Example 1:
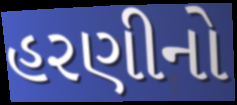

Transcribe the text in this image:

હરણીનો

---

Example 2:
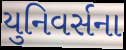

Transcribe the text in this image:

યુનિવર્સના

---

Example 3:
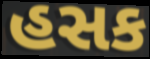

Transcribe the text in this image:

હસક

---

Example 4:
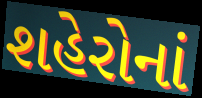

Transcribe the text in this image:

શહેરોનાં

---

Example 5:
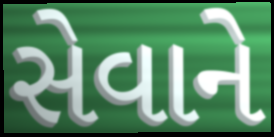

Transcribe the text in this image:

સેવાને